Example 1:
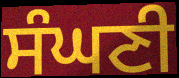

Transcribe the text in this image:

ਸੰਘਣੀ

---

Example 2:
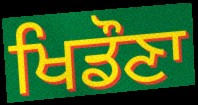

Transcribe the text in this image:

ਖਿਡੌਣਾ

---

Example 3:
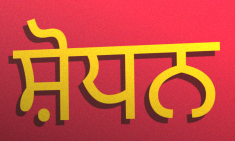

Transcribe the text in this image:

ਸ਼ੋਧਨ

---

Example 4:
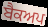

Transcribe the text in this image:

ਬੈਕਅਪ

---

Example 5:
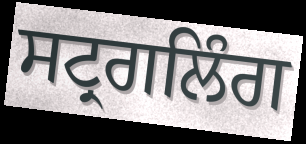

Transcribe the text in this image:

ਸਟ੍ਰਗਲਿੰਗ